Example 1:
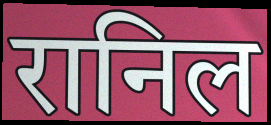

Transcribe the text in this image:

रानिल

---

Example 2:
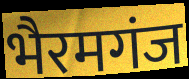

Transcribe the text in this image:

भैरमगंज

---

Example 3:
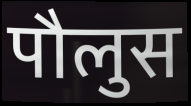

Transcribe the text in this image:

पौलुस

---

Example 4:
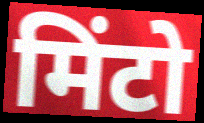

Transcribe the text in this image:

मिंटो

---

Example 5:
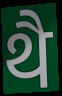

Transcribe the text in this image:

थै